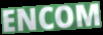
ENCOM